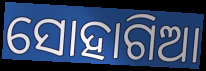
ସୋହାଗିଆ